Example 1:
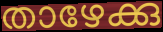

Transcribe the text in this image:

താഴേക്കു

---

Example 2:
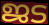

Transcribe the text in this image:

ജട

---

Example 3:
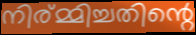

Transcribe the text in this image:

നിര്മ്മിച്ചതിന്റെ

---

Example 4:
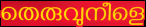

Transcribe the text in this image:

തെരുവുനീളെ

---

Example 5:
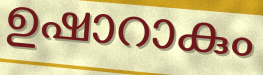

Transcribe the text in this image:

ഉഷാറാകും